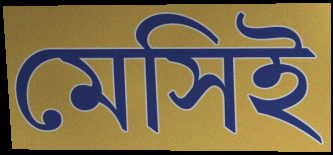
মেসিই